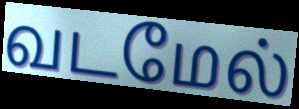
வடமேல்